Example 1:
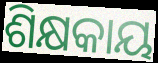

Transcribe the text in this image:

ଶିକ୍ଷକାୟ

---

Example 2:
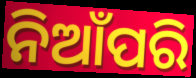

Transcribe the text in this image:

ନିଆଁପରି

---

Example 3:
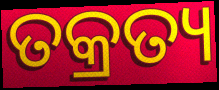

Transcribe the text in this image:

ତକ୍ରତ୍ୟ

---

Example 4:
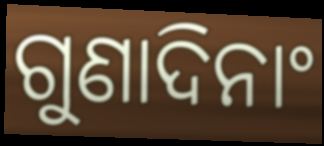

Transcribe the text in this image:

ଗୁଣାଦିନାଂ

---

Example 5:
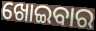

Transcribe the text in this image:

ଖୋଇବାର